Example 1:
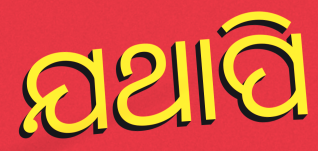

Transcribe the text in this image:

ଯଥାପି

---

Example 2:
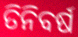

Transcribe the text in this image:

ତିନିବର୍ଷ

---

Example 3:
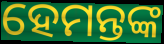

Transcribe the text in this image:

ହେମନ୍ତଙ୍କ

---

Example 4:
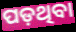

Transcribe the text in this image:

ପଡ଼ଥିବା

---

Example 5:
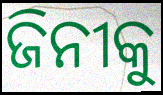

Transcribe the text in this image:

ଜିନୀକୁ